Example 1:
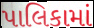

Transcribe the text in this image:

પાલિકામાં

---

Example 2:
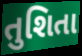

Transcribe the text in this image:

તુશિતા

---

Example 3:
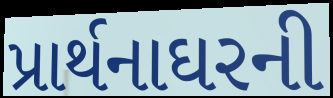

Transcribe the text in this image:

પ્રાર્થનાઘરની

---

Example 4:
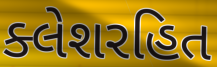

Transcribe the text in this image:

ક્લેશરહિત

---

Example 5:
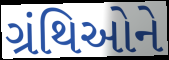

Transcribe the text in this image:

ગ્રંથિઓને